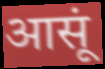
आसूं